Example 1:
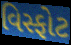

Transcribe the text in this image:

વિસ્ફોટ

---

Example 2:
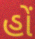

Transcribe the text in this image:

હોં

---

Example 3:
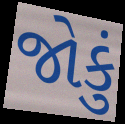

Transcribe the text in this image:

જોકું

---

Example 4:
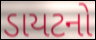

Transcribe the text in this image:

ડાયટનો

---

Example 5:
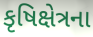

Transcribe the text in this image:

કૃષિક્ષેત્રના